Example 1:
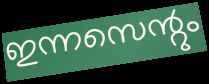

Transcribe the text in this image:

ഇന്നസെന്റും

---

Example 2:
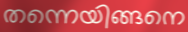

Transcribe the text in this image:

തന്നെയിങ്ങനെ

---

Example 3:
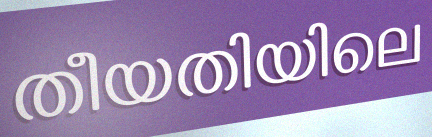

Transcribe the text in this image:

തീയതിയിലെ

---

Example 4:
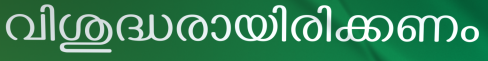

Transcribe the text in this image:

വിശുദ്ധരായിരിക്കണം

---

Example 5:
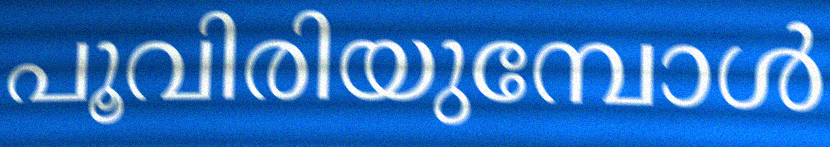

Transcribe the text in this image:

പൂവിരിയുമ്പോൾ